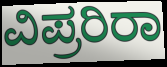
ವಿಪ್ರರಿರಾ